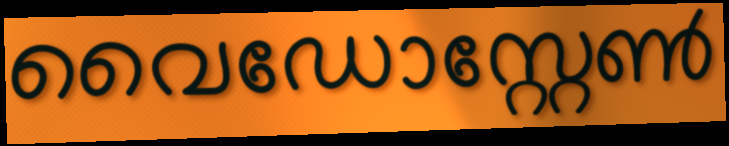
വൈഡോസ്റ്റേൺ